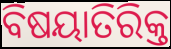
ବିଷୟାତିରିକ୍ତ